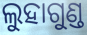
ଲୁହାଗୁଣ୍ଡ